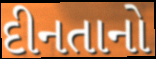
દીનતાનો